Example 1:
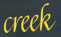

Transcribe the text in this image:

creek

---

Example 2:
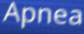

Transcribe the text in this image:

Apnea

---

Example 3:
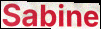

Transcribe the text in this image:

Sabine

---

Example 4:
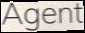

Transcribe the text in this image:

Agent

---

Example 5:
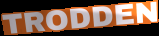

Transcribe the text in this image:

TRODDEN